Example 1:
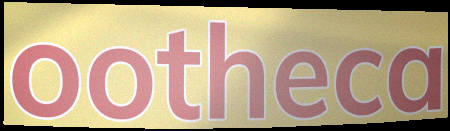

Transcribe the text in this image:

ootheca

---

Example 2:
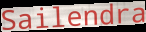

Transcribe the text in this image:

Sailendra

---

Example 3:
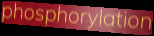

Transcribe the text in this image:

phosphorylation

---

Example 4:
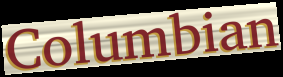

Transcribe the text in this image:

Columbian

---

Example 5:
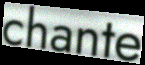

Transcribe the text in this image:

chante